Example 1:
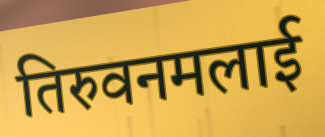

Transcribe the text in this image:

तिरुवनमलाई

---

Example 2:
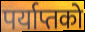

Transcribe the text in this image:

पर्याप्तको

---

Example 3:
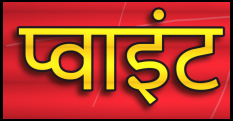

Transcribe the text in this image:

प्वाइंट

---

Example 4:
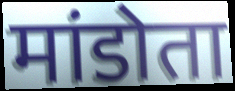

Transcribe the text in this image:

मांडोता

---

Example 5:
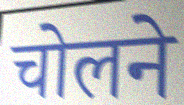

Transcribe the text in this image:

चोलने